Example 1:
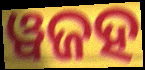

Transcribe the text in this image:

ୱଜହ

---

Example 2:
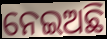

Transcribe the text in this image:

ନେଇଅଛି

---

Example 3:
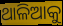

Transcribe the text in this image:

ଥାଳିଆକୁ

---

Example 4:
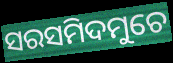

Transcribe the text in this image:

ସରସମିଦମୁଚେ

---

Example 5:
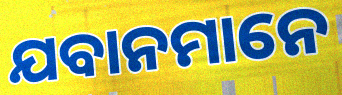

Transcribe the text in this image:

ଯବାନମାନେ